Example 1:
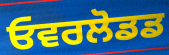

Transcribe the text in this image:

ਓਵਰਲੋਡਡ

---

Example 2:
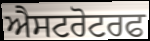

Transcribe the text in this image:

ਐਸਟਰੋਟਰਫ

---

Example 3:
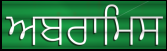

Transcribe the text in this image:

ਅਬਰਾਮਿਸ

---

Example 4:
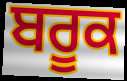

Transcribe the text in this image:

ਬਰੂਕ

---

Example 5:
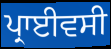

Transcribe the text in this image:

ਪ੍ਰਾਈਵਸੀ